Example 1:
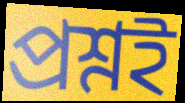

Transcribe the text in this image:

প্ৰশ্নই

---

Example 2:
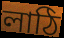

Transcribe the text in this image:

লাঠি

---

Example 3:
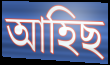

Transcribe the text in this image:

আহিছ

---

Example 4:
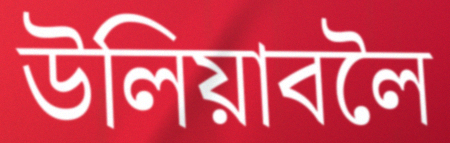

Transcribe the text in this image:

উলিয়াবলৈ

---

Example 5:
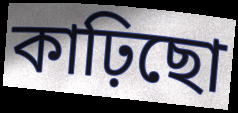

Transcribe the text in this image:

কাঢ়িছো